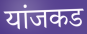
यांजकड